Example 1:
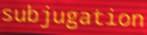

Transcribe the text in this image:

subjugation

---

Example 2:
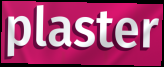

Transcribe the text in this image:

plaster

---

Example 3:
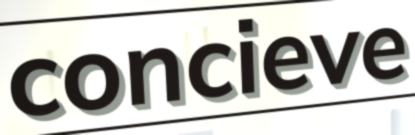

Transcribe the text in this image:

concieve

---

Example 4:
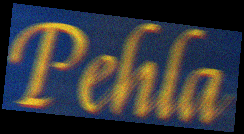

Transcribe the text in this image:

Pehla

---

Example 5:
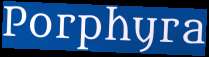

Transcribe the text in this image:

Porphyra